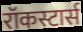
रॉकस्टार्स